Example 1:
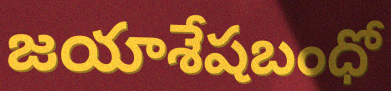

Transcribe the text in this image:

జయాశేషబంధో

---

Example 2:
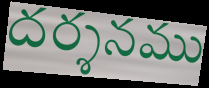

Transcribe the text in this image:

దర్శనము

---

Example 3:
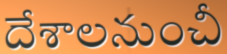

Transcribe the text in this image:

దేశాలనుంచీ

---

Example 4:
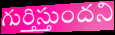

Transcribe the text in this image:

గుర్తిస్తుందని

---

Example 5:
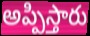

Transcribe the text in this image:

అప్పిస్తారు